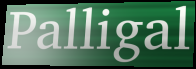
Palligal